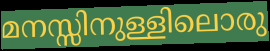
മനസ്സിനുള്ളിലൊരു